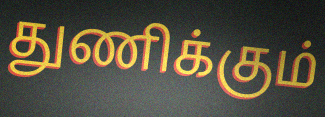
துணிக்கும்